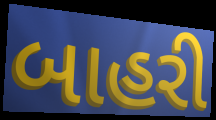
બાહરી